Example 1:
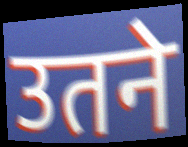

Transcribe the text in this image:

उतने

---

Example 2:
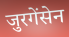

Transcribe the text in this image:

जुरगेंसेन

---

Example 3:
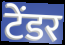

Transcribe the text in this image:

टेंडर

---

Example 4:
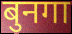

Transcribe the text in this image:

बुनगा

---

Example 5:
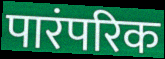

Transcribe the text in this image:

पारंपरिक